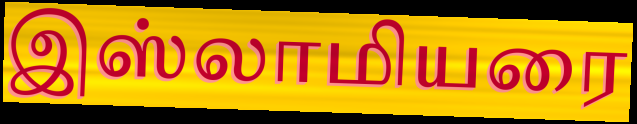
இஸ்லாமியரை